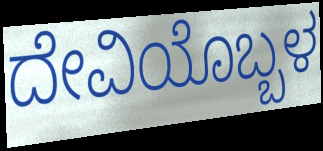
ದೇವಿಯೊಬ್ಬಳ